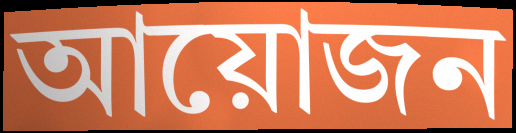
আয়োজন